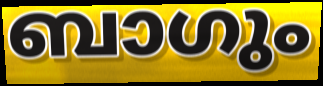
ബാഗും